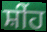
ਸ਼ੀਂਹ